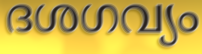
ദശഗവ്യം